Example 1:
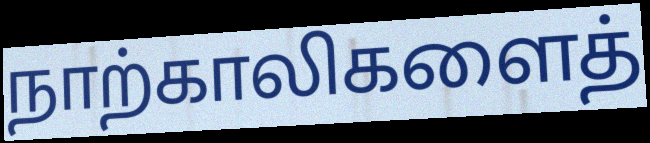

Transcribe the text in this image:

நாற்காலிகளைத்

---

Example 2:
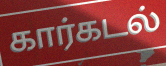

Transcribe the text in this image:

கார்கடல்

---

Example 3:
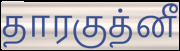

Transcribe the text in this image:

தாரகுத்னீ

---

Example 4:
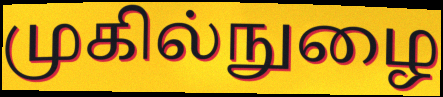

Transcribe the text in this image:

முகில்நுழை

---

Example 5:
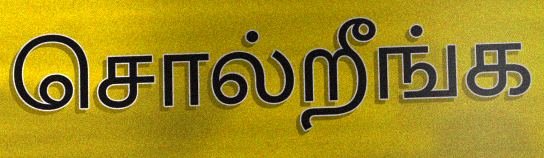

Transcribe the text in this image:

சொல்றீங்க